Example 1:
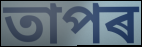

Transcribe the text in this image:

তাপৰ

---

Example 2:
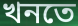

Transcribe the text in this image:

খনতে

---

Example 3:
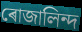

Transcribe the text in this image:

ৰোজালিন্দ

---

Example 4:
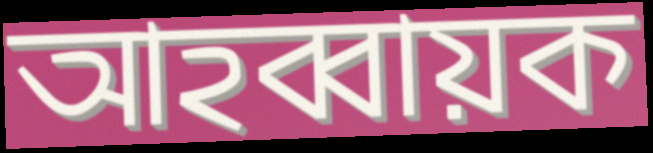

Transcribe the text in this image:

আহব্বায়ক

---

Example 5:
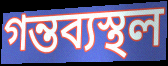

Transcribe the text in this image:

গন্তব্যস্থল